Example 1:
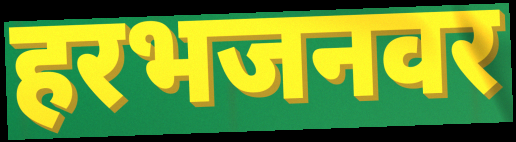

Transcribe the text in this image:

हरभजनवर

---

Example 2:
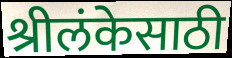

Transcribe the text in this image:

श्रीलंकेसाठी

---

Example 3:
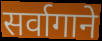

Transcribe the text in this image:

सर्वागाने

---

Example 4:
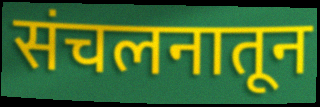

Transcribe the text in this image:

संचलनातून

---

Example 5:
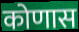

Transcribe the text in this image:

कोणास